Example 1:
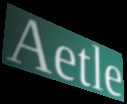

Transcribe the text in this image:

Aetle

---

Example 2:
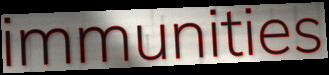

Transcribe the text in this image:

immunities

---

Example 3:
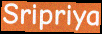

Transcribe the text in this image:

Sripriya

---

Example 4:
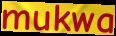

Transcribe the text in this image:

mukwa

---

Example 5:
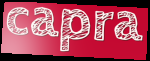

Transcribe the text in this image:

capra